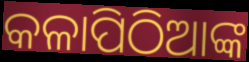
କଳାପିଠିଆଙ୍କ